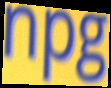
npg